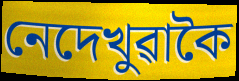
নেদেখুৱাকৈ